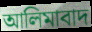
আলিমাবাদ